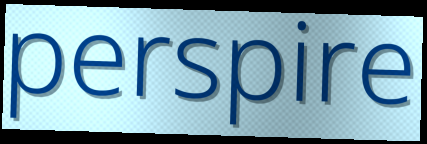
perspire